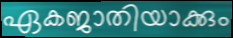
ഏകജാതിയാക്കും